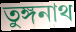
তুঙ্গনাথ